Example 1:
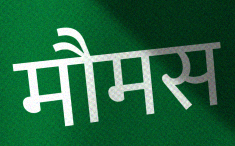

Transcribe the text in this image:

मौमस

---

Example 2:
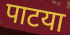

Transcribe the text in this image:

पाटया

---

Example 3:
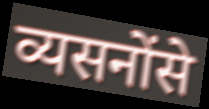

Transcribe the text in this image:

व्यसनोंसे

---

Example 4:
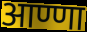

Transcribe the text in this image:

आण्णा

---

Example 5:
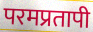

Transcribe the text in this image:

परमप्रतापी